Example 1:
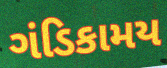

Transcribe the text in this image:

ગંડિકામય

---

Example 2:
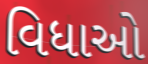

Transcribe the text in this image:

વિધાઓ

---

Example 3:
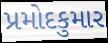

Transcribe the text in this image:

પ્રમોદકુમાર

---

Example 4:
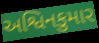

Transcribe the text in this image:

અશ્વિનકુમાર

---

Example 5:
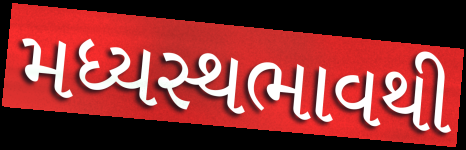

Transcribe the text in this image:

મધ્યસ્થભાવથી